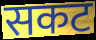
सकट